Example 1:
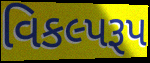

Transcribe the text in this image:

વિકલ્પરૂપ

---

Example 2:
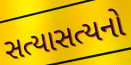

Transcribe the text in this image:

સત્યાસત્યનો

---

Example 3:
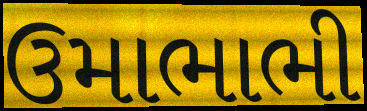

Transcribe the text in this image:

ઉમાભાભી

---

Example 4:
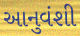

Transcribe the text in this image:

આનુવંશી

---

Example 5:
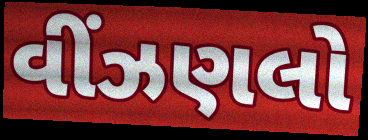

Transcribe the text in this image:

વીંઝણલો